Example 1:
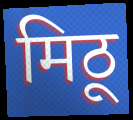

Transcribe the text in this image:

मिठू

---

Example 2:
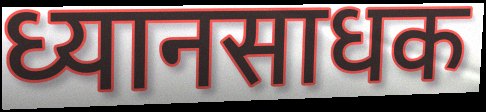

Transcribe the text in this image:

ध्यानसाधक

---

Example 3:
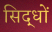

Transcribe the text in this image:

सिद्धों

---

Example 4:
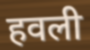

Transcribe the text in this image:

हवली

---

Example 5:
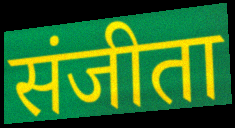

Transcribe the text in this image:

संजीता